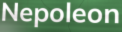
Nepoleon